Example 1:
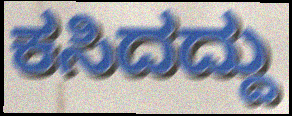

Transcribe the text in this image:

ಕಸಿದದ್ದು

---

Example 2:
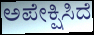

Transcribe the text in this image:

ಅಪೇಕ್ಷಿಸಿದೆ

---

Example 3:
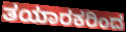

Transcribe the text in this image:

ತಯಾರಕರಿಂದ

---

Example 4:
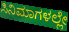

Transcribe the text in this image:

ಸಿನಿಮಾಗಳಲ್ಲೇ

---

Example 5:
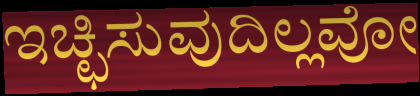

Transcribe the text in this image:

ಇಚ್ಛಿಸುವುದಿಲ್ಲವೋ